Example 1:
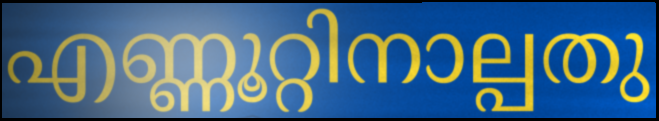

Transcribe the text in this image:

എണ്ണൂറ്റിനാല്പതു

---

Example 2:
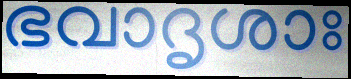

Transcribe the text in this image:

ഭവാദൃശാഃ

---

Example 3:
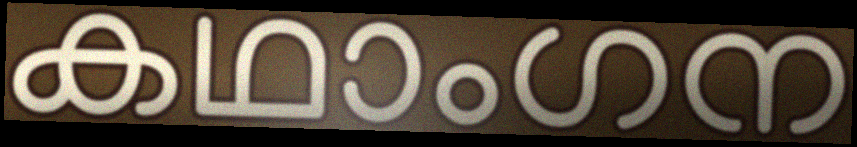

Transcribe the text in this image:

കഥാംഗന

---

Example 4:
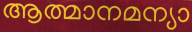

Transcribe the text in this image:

ആത്മാനമന്യാ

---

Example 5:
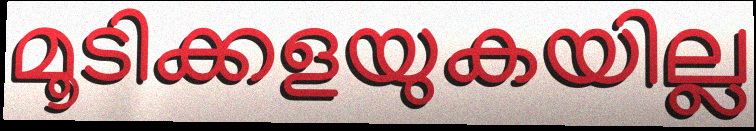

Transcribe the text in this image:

മൂടിക്കളയുകയില്ല